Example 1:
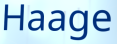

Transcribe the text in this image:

Haage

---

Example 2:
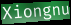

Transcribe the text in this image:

Xiongnu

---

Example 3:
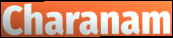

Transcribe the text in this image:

Charanam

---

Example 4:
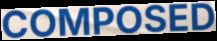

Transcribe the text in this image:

COMPOSED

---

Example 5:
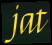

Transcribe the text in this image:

jat